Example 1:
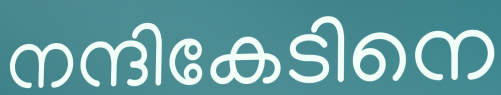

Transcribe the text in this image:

നന്ദികേടിനെ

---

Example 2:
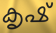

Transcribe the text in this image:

കൃഷ്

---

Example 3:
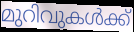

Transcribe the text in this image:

മുറിവുകൾക്ക്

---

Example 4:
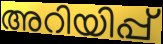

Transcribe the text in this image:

അറിയിപ്പ്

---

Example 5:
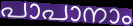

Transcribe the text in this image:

പാപാനാം